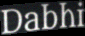
Dabhi